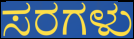
ಸರಗಳು